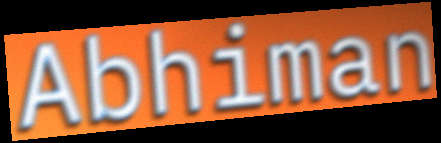
Abhiman